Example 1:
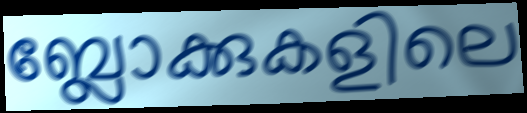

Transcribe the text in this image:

ബ്ലോക്കുകളിലെ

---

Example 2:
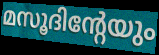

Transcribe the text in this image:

മസൂദിന്റേയും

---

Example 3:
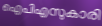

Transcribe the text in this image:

ഐപിഎസുകാരി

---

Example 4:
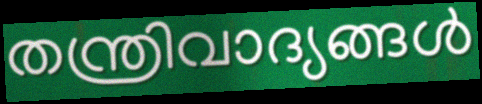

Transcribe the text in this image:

തന്ത്രിവാദ്യങ്ങൾ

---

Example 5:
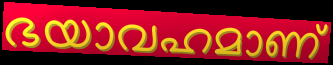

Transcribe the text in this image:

ഭയാവഹമാണ്